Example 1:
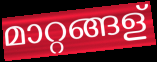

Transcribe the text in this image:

മാറ്റങ്ങള്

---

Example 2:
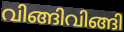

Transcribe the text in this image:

വിങ്ങിവിങ്ങി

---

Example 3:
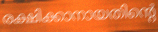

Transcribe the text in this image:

രക്ഷിക്കാനായതിന്റെ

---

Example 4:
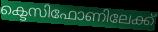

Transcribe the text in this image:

ക്ടെസിഫോണിലേക്ക്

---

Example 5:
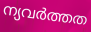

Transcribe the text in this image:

ന്യവർത്തത